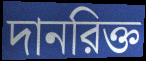
দানরিক্ত